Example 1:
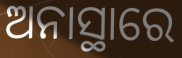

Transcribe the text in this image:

ଅନାସ୍ଥାରେ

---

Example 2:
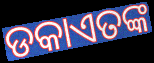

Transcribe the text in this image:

ଡକାଏତଙ୍କ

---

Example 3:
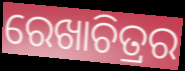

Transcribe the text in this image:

ରେଖାଚିତ୍ରର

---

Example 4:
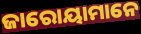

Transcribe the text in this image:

ଜାରୋୟାମାନେ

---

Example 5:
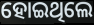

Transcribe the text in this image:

ହୋଇଥିଲେ